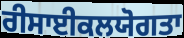
ਰੀਸਾਈਕਲਯੋਗਤਾ